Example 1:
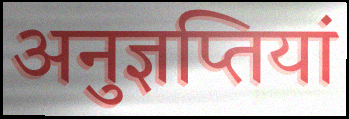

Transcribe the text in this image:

अनुज्ञप्तियां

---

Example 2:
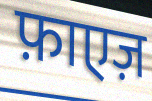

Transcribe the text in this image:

फ़ाएज़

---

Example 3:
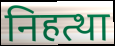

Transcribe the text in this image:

निहत्था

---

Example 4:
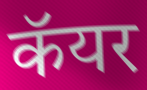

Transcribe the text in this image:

कॅयर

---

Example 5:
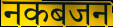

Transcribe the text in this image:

नकबजन